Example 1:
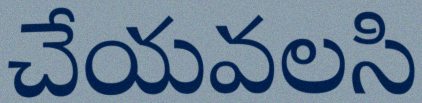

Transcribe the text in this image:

చేయవలసి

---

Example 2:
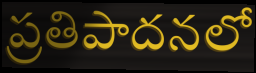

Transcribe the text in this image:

ప్రతిపాదనలో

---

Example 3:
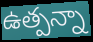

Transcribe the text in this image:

ఉత్పన్నా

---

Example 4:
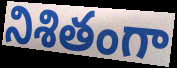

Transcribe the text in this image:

నిశితంగా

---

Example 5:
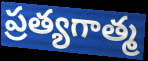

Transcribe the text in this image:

ప్రత్యగాత్మ